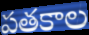
పతకాల